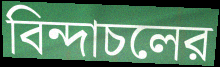
বিন্দাচলের